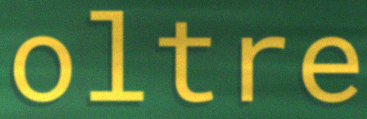
oltre